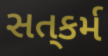
સત્‌કર્મ